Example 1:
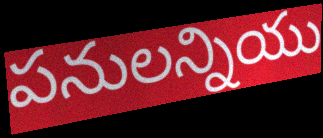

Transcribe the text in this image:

పనులన్నియు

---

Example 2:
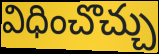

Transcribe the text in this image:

విధించొచ్చు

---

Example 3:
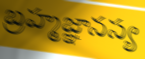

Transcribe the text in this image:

బ్రహ్మజ్ఞానస్య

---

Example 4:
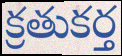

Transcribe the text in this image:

క్రతుకర్త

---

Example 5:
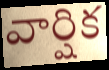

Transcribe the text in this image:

వార్షిక